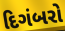
દિગંબરો